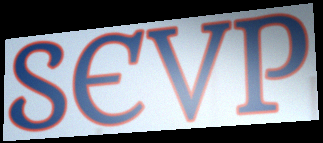
SEVP